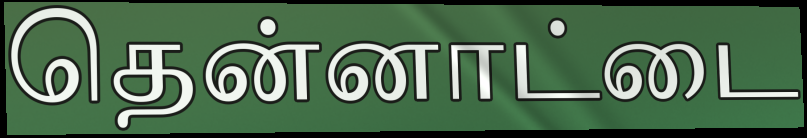
தென்னாட்டை